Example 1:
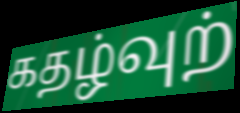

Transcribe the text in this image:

கதழ்வுற்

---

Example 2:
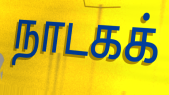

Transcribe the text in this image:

நாடகக்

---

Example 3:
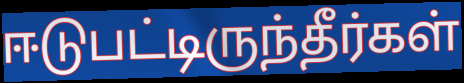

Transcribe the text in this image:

ஈடுபட்டிருந்தீர்கள்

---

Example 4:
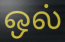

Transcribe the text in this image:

ஒல்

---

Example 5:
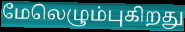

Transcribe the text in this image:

மேலெழும்புகிறது